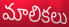
మాలికలు